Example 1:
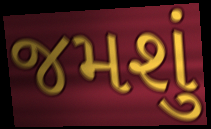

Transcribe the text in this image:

જમશું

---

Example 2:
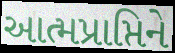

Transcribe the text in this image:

આત્મપ્રાપ્તિને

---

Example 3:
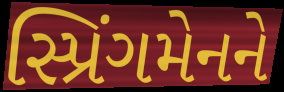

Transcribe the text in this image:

સ્પ્રિંગમેનને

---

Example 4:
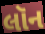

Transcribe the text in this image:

લૉન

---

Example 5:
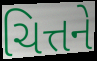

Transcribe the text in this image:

ચિત્તને